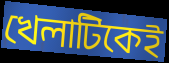
খেলাটিকেই